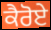
ਕੈਰੋਏ